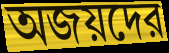
অজয়দের